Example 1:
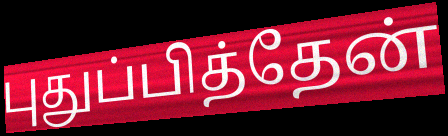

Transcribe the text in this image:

புதுப்பித்தேன்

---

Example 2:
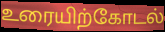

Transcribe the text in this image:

உரையிற்கோடல்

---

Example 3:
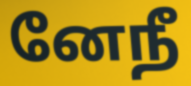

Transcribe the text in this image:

னேநீ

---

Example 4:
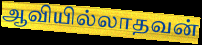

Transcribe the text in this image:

ஆவியில்லாதவன்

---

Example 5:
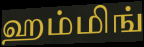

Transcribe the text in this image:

ஹம்மிங்